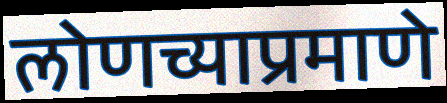
लोणच्याप्रमाणे